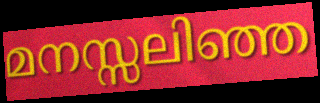
മനസ്സലിഞ്ഞ